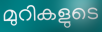
മുറികളുടെ